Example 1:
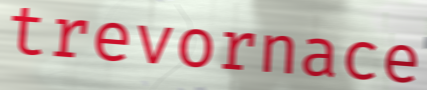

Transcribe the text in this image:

trevornace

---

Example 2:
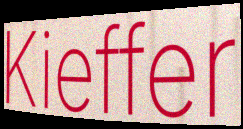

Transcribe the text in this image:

Kieffer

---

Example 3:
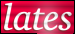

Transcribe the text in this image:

lates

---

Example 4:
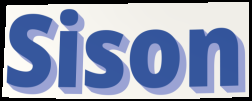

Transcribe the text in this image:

Sison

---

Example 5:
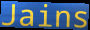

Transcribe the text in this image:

Jains